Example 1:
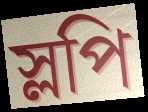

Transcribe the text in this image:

স্লপি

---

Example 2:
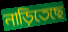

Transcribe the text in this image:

নাড়িতেছে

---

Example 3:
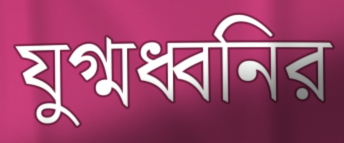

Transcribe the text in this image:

যুগ্মধ্বনির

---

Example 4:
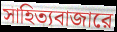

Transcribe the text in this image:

সাহিত্যবাজারে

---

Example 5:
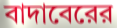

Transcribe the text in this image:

বাদাবেরের